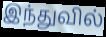
இந்துவில்